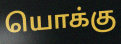
யொக்கு